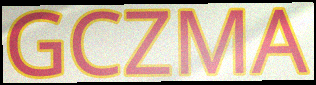
GCZMA